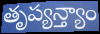
తృప్యన్త్యాం